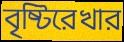
বৃষ্টিরেখার